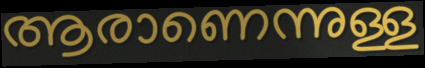
ആരാണെന്നുള്ള